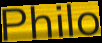
Philo